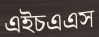
এইচএএস